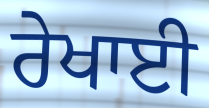
ਰੇਖਾਈ